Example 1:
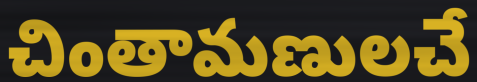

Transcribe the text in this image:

చింతామణులచే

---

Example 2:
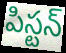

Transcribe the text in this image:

పిస్టన్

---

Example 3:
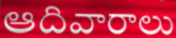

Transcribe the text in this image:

ఆదివారాలు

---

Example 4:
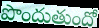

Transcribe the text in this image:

పొందుతుందో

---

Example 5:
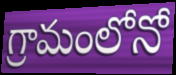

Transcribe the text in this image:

గ్రామంలోనో